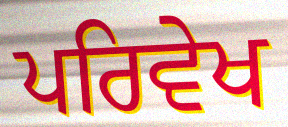
ਪਰਿਵੇਖ